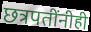
छत्रपतींनीही